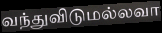
வந்துவிடுமல்லவா